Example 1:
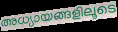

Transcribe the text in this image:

അധ്യായങ്ങളിലൂടെ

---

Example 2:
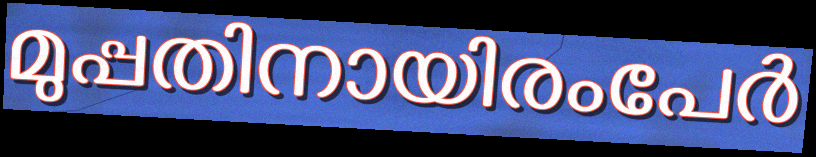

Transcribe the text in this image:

മുപ്പതിനായിരംപേർ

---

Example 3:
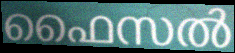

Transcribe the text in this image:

ഫൈസൽ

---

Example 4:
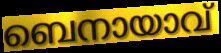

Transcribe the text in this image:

ബെനായാവ്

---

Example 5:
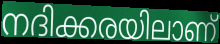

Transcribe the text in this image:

നദിക്കരയിലാണ്